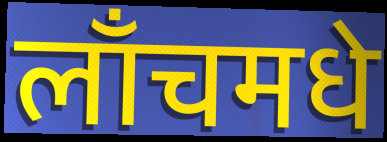
लाँचमधे